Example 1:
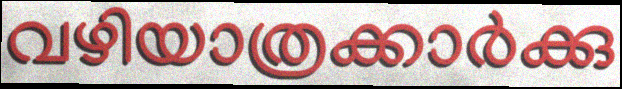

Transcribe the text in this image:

വഴിയാത്രക്കാർക്കു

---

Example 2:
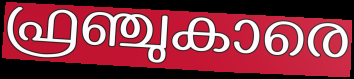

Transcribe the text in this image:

ഫ്രഞ്ചുകാരെ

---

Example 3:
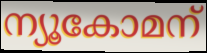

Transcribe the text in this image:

ന്യൂകോമന്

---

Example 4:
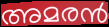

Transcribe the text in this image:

അമരൻ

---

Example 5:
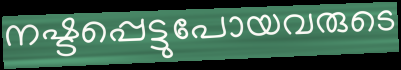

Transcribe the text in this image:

നഷ്ടപ്പെട്ടുപോയവരുടെ